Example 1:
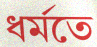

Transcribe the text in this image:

ধৰ্মতে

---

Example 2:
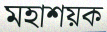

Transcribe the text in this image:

মহাশয়ক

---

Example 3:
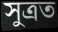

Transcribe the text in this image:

সুত্ৰত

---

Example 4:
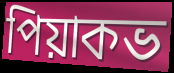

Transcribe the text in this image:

পিয়াকভ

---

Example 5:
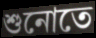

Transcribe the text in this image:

শুনোতে